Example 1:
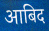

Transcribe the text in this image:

आबिद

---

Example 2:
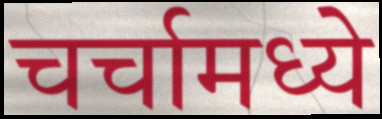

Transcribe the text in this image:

चर्चामध्ये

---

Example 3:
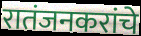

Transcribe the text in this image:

रातंजनकरांचे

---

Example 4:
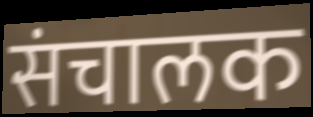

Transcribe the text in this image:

संचालक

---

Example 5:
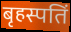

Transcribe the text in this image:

बृहस्पतिं